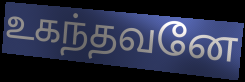
உகந்தவனே